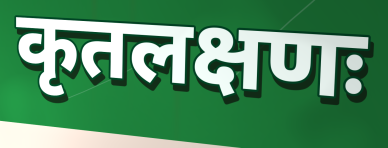
कृतलक्षणः